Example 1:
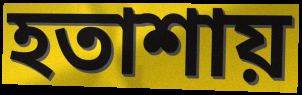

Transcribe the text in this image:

হতাশায়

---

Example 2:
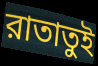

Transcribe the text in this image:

রাতাতুই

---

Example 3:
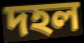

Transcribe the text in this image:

দহল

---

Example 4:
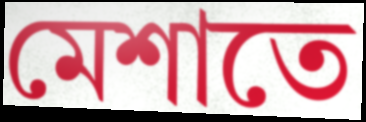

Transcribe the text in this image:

মেশাতে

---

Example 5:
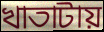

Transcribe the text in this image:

খাতাটায়